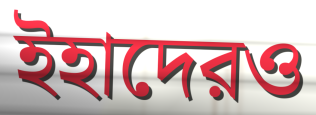
ইহাদেরও